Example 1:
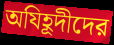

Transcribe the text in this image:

অযিহূদীদের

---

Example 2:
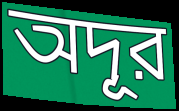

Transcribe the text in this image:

অদূর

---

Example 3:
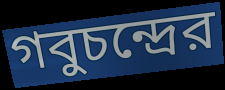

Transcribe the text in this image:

গবুচন্দ্রের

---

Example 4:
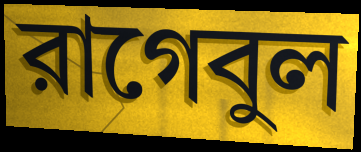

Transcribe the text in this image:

রাগেবুল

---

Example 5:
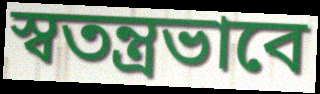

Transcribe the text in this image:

স্বতন্ত্রভাবে